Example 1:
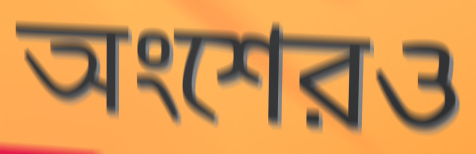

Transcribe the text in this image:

অংশেরও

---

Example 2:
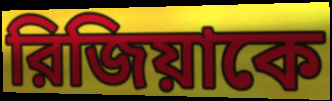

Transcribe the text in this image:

রিজিয়াকে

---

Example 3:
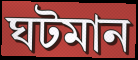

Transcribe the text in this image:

ঘটমান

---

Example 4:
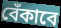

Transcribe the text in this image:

বেঁকাবে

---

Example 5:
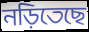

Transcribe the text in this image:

নড়িতেছে